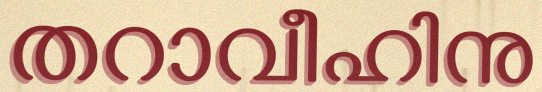
തറാവീഹിനു